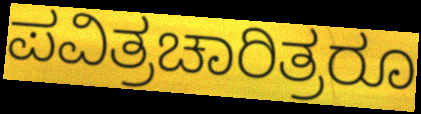
ಪವಿತ್ರಚಾರಿತ್ರರೂ